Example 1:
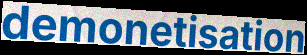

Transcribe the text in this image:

demonetisation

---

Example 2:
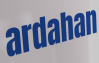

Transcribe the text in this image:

ardahan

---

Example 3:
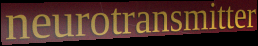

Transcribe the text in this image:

neurotransmitter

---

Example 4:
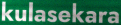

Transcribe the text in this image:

kulasekara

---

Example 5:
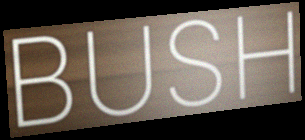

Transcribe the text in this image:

BUSH